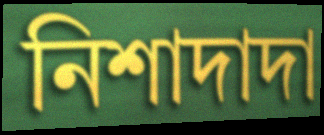
নিশাদাদা